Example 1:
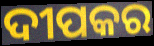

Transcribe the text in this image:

ଦୀପକର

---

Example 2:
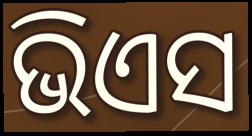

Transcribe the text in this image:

ଭିଏସ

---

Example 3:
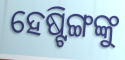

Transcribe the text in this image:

ହେଷ୍ଟିଙ୍ଗଙ୍କୁ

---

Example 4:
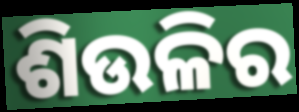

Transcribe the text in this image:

ଶିଉଳିର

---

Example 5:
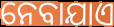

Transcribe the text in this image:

ନେବାଯାଏ